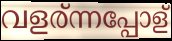
വളര്ന്നപ്പോള്